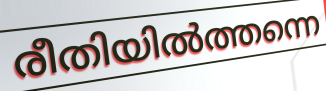
രീതിയിൽത്തന്നെ